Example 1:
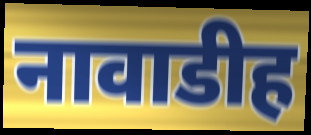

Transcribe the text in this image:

नावाडीह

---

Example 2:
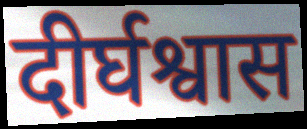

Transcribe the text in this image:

दीर्घश्वास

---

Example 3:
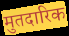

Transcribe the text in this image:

मुतदारिक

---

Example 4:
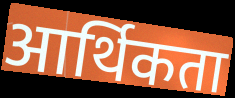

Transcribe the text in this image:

आर्थिकता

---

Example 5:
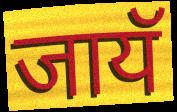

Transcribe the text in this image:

जायॅ